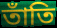
তাঁতি